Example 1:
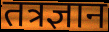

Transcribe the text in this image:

तत्रज्ञान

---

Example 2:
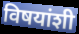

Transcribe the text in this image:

विषयांशी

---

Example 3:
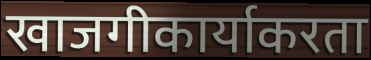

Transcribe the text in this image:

खाजगीकार्याकरता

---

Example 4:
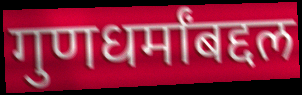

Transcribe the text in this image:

गुणधर्मांबद्दल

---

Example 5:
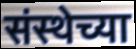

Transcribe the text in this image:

संस्थेच्या